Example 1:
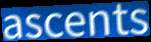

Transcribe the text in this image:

ascents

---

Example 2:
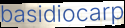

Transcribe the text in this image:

basidiocarp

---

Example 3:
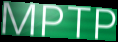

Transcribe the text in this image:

MPTP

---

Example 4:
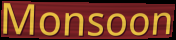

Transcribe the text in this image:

Monsoon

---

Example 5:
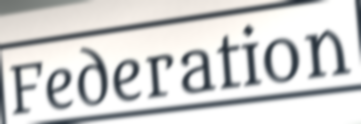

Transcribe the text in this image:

Federation